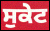
ਸੁਕੇਟ